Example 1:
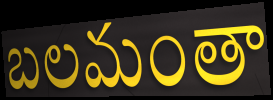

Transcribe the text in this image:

బలమంతా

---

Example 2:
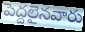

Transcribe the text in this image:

పెద్దలైనవారు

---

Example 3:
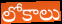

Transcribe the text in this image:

లోకాలు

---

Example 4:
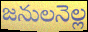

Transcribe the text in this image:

జనులనెల్ల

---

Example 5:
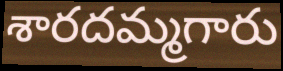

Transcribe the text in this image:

శారదమ్మగారు